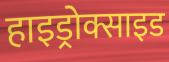
हाइड्रोक्साइड